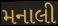
મનાલી